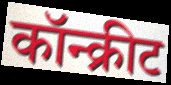
कॉन्क्रीट